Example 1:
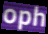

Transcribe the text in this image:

oph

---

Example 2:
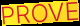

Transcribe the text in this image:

PROVE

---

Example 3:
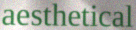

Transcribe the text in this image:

aesthetical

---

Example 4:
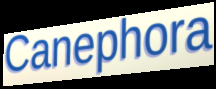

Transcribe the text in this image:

Canephora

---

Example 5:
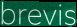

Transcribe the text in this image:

brevis